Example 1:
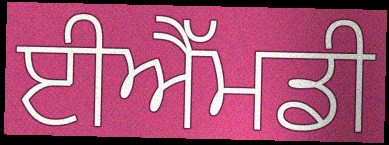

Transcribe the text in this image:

ਈਐੱਮਡੀ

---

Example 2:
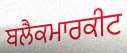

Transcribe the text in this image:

ਬਲੈਕਮਾਰਕੀਟ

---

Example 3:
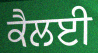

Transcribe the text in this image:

ਕੈਲਈ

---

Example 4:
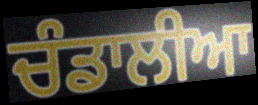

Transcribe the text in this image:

ਚੰਡਾਲੀਆ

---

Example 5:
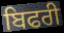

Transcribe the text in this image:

ਬਿਫਰੀ